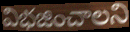
విభజించాలని